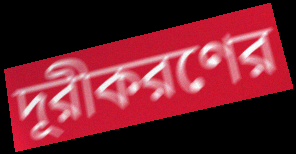
দূরীকরণের